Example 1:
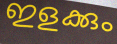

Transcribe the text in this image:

ഇളക്കും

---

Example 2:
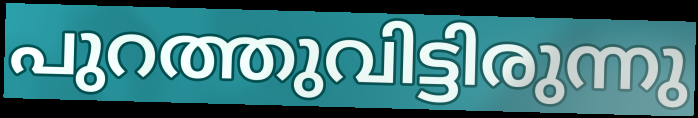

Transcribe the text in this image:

പുറത്തുവിട്ടിരുന്നു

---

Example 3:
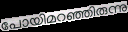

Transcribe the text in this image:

പോയിമറഞ്ഞിരുന്നു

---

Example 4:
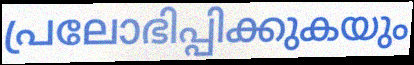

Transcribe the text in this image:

പ്രലോഭിപ്പിക്കുകയും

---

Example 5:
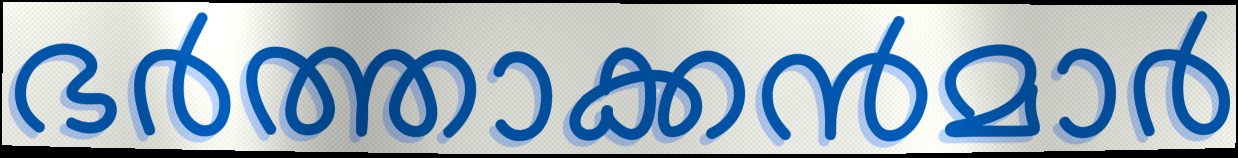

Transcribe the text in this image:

ഭർത്താക്കൻമാർ